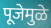
पूजेमुळे